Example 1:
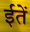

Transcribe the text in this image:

ईतें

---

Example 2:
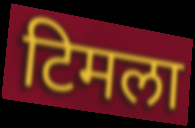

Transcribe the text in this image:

टिमला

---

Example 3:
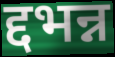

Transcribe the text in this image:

द्दभन्न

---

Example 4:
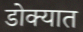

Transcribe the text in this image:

डोक्यात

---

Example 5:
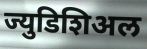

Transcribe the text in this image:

ज्युडिशिअल